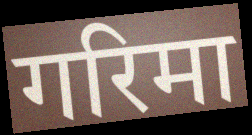
गरिमा